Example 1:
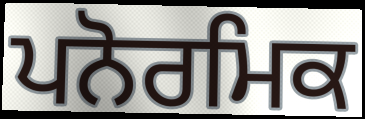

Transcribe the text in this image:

ਪਨੋਰਮਿਕ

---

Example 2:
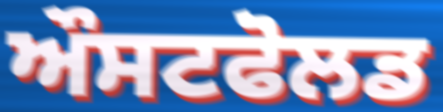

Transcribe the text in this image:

ਔਸਟਫੋਲਡ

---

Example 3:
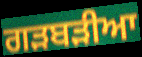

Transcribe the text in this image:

ਗੜਬੜੀਆ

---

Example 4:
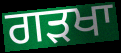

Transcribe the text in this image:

ਗੜਖਾ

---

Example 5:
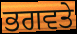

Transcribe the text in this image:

ਭਗਵਤੇ